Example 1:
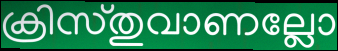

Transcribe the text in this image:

ക്രിസ്തുവാണല്ലോ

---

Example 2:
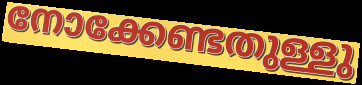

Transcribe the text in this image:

നോക്കേണ്ടതുള്ളു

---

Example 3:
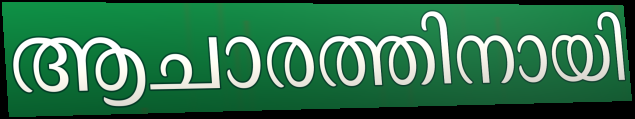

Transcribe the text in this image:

ആചാരത്തിനായി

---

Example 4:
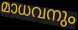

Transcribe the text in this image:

മാധവനും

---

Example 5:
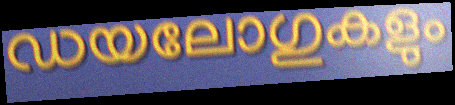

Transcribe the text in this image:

ഡയലോഗുകളും